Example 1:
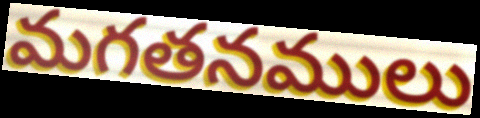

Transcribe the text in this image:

మగతనములు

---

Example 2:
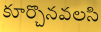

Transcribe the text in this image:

కూర్చొనవలసి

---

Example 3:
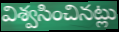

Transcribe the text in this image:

విశ్వసించినట్లు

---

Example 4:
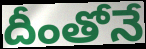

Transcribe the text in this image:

దీంతోనే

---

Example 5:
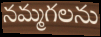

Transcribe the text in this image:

నమ్మగలను